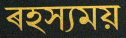
ৰহস্যময়